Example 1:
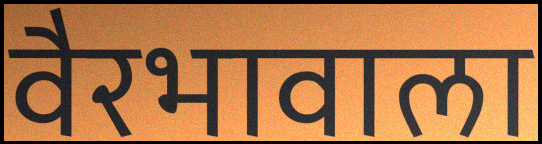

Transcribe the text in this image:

वैरभावाला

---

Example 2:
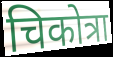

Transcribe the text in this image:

चिकोत्रा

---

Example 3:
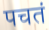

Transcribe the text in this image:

पचतं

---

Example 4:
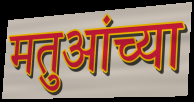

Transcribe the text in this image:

मतुआंच्या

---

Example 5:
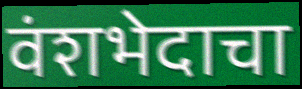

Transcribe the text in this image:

वंशभेदाचा